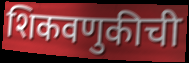
शिकवणुकीची